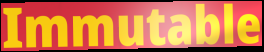
Immutable